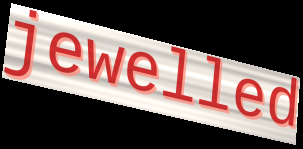
jewelled